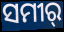
ସମୀର୍